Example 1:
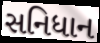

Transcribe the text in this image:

સનિધાન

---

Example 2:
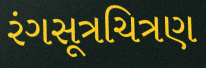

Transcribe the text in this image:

રંગસૂત્રચિત્રણ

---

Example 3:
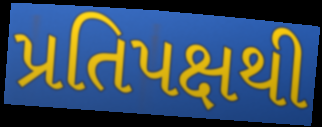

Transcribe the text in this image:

પ્રતિપક્ષથી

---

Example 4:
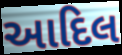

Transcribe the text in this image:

આદિલ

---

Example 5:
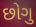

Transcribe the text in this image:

છોગુ